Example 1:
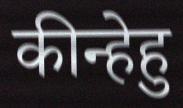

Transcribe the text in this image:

कीन्हेहु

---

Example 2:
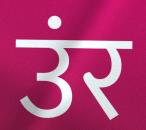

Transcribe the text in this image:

उंर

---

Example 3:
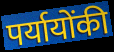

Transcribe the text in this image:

पर्यायोंकी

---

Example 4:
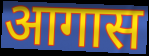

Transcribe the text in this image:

आगास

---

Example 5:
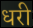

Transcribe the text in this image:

धरी